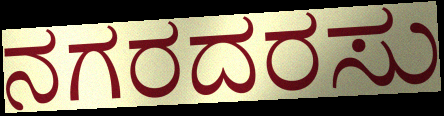
ನಗರದರಸು